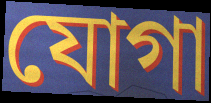
যোগা